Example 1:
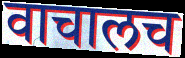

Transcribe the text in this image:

वाचालच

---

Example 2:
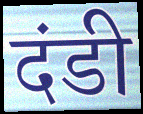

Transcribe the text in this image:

दंडी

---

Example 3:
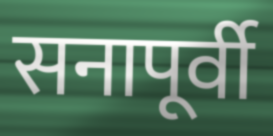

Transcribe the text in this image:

सनापूर्वी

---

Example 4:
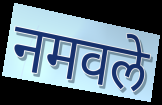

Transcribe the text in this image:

नमवले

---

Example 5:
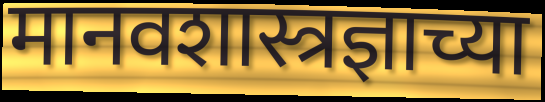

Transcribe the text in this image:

मानवशास्त्रज्ञाच्या